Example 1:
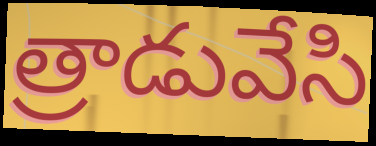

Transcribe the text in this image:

త్రాడువేసి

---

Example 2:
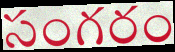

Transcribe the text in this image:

సంగరం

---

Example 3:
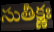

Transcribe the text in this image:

సుతీక్ష్ణః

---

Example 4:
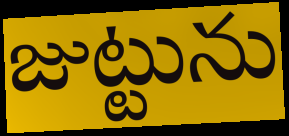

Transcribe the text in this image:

జుట్టును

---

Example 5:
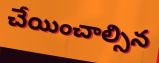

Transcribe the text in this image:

చేయించాల్సిన